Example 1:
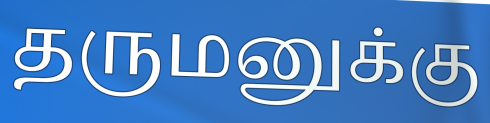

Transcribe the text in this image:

தருமனுக்கு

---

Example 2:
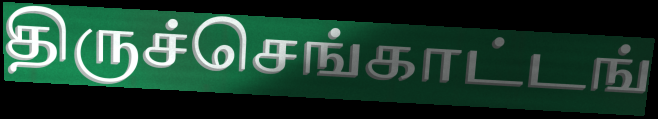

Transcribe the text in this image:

திருச்செங்காட்டங்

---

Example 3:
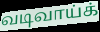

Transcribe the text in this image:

வடிவாய்க்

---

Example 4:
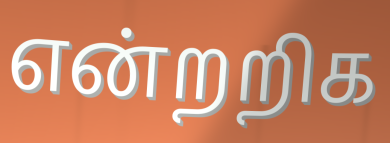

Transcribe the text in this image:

என்றறிக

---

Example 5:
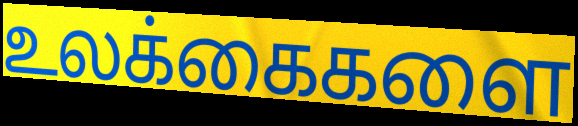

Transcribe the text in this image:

உலக்கைகளை